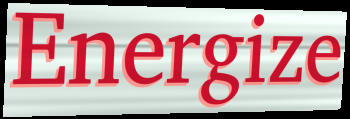
Energize